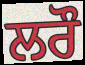
ਲਰੌ